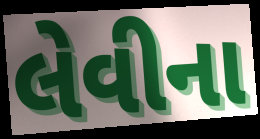
લેવીના